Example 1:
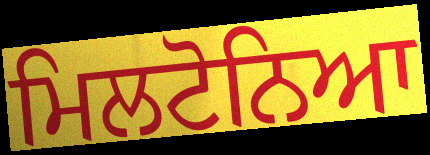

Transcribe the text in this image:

ਮਿਲਟੋਨਿਆ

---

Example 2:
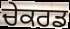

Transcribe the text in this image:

ਚੇਕਰਡ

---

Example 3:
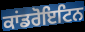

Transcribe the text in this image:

ਕਾਂਡਰੋਇਟਿਨ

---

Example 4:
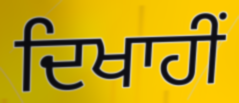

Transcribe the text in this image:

ਦਿਖਾਹੀਂ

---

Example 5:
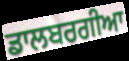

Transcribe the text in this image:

ਡਾਲਬਰਗੀਆ